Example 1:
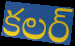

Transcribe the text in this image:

కలర్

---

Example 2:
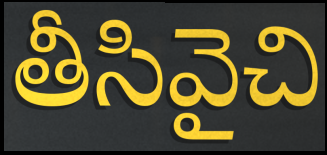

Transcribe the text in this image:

తీసివైచి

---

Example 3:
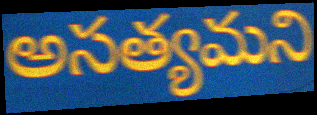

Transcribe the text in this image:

అసత్యమని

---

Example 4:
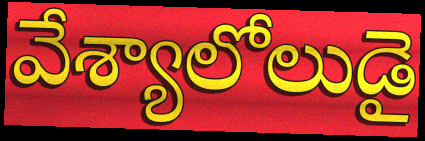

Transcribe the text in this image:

వేశ్యాలోలుడై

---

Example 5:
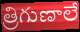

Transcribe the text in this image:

త్రిగుణాలే